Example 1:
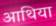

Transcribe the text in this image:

आथिया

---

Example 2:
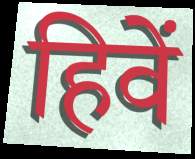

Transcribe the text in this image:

हिवें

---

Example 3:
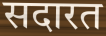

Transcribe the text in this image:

सदारत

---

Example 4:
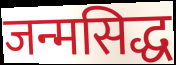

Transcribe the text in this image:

जन्‍मसिद्ध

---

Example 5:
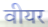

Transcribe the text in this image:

वीयर